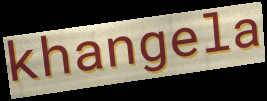
khangela